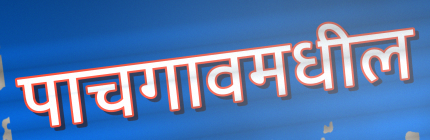
पाचगावमधील